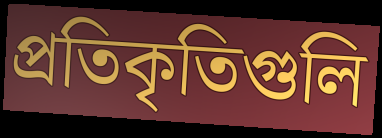
প্রতিকৃতিগুলি